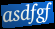
asdfgf